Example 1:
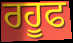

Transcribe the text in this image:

ਰਹੂਫ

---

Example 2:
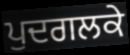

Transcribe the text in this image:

ਪੁਦਗਲਕੇ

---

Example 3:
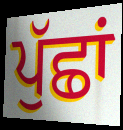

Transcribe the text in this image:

ਪੁੱਛਾਂ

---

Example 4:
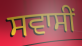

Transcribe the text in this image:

ਸਵਾਸੀਂ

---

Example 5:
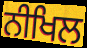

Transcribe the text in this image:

ਨੀਖਿਲ